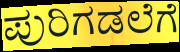
ಪುರಿಗಡಲೆಗೆ